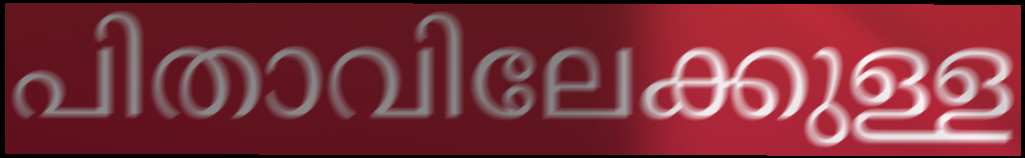
പിതാവിലേക്കുള്ള